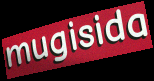
mugisida